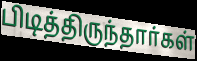
பிடித்திருந்தார்கள்